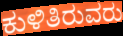
ಕುಳಿತಿರುವರು